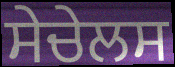
ਸੇਚੇਲਸ